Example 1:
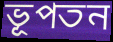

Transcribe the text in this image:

ভূপতন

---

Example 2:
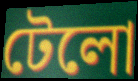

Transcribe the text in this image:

টেলো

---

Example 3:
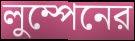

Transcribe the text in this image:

লুম্পেনের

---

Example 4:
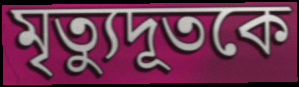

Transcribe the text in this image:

মৃত্যুদূতকে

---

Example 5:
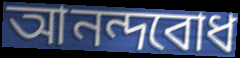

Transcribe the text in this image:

আনন্দবোধ